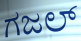
ಗಜಲ್